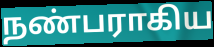
நண்பராகிய